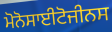
ਮੋਨੋਸਾਈਟੋਜੀਨਸ